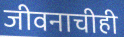
जीवनाचीही